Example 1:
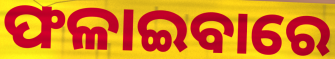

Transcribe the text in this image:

ଫଳାଇବାରେ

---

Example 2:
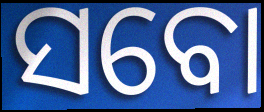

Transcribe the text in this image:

ସବୋ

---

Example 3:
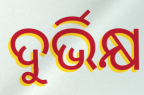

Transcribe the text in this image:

ଦୁର୍ଭିକ୍ଷ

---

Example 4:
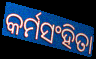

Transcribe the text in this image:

କର୍ମସଂହିତା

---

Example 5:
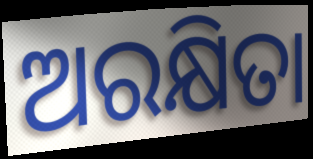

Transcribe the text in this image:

ଅରକ୍ଷିତା